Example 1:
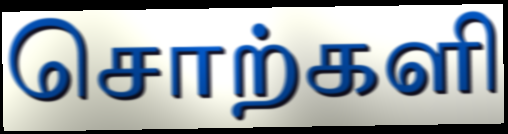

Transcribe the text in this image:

சொற்களி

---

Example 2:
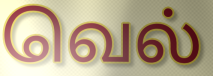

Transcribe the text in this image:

வெல்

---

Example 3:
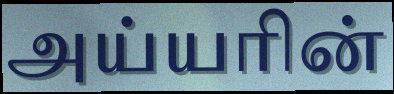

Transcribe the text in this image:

அய்யரின்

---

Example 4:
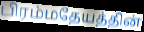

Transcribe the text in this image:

பிரம்மதேயத்தின்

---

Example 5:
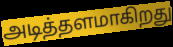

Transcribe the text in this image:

அடித்தளமாகிறது